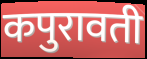
कपुरावती